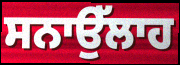
ਸਨਾਉੱਲਾਹ